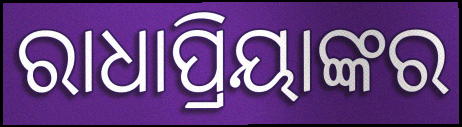
ରାଧାପ୍ରିୟାଙ୍କର